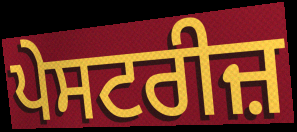
ਪੇਸਟਰੀਜ਼